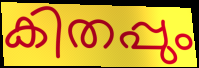
കിതപ്പും